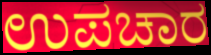
ಉಪಚಾರ